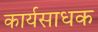
कार्यसाधक